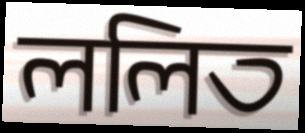
ললিত